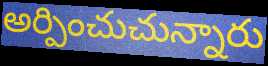
అర్పించుచున్నారు